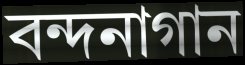
বন্দনাগান